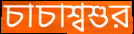
চাচাশ্বশুর